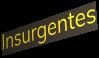
Insurgentes